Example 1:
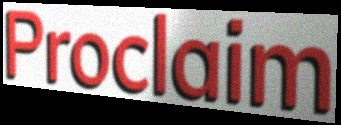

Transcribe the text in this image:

Proclaim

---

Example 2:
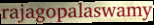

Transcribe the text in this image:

rajagopalaswamy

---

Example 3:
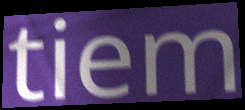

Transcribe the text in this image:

tiem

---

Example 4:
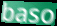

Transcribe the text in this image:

baso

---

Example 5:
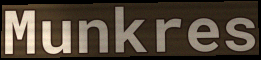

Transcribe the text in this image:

Munkres